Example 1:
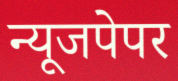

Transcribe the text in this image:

न्यूजपेपर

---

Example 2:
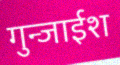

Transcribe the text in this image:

गुन्जाईश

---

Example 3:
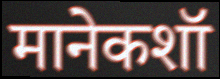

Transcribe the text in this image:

मानेकशॉ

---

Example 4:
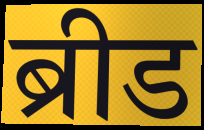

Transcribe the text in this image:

ब्रीड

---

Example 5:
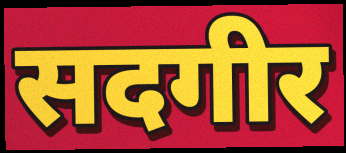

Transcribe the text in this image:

सदगीर